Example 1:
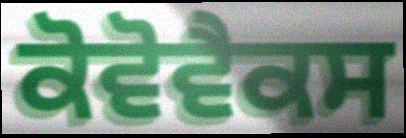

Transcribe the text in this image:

ਕੋਵੋਵੈਕਸ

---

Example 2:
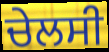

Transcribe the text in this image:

ਚੇਲਸੀ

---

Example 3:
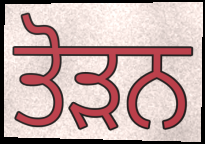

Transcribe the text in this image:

ਤੋੜਨ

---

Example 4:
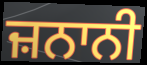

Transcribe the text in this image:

ਜ਼ਨਾਨੀ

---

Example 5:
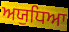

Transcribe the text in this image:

ਅਯੁਧਿਆ